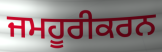
ਜਮਹੂਰੀਕਰਨ